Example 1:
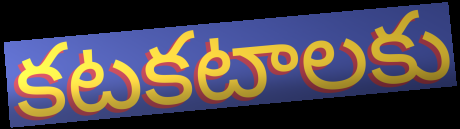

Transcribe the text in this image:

కటకటాలకు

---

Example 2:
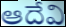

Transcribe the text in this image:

ఆదేవి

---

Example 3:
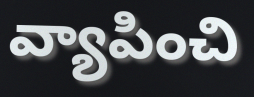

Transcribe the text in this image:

వ్యాపించి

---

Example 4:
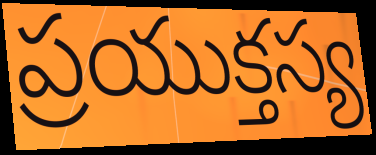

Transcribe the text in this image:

ప్రయుక్తస్య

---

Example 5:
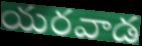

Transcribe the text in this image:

యరవాడ